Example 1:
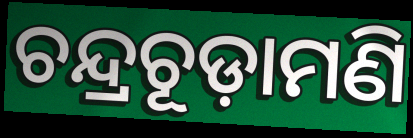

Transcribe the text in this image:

ଚନ୍ଦ୍ରଚୂଡ଼ାମଣି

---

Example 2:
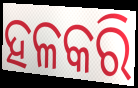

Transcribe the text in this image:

ହଳକରି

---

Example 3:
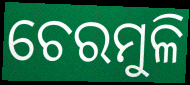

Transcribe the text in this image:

ଚେରମୁଳି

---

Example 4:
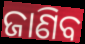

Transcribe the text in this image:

ଜାଣିବ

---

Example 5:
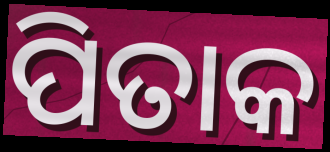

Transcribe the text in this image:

ପିତାକ